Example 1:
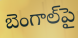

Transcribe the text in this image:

బెంగాల్‌పై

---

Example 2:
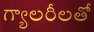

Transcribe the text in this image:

గ్యాలరీలతో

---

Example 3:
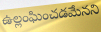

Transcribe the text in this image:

ఉల్లంఘించడమేనని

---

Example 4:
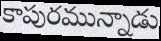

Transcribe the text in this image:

కాపురమున్నాడు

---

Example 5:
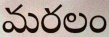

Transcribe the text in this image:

మరలం